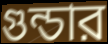
গুন্ডার